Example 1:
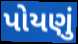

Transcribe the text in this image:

પોયણું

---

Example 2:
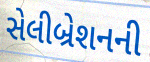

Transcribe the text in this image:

સેલીબ્રેશનની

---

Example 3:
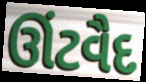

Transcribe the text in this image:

ઊંટવૈદ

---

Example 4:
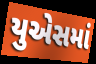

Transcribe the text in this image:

યુએસમાં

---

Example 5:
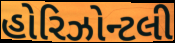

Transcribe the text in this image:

હોરિઝોન્ટલી